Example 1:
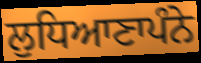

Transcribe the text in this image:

ਲੁਧਿਆਣਾਪੰਨੇ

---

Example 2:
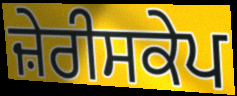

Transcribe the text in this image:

ਜ਼ੇਰੀਸਕੇਪ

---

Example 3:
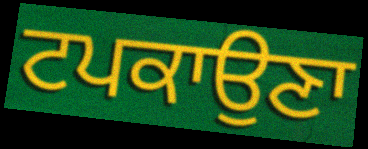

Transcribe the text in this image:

ਟਪਕਾਉਣਾ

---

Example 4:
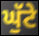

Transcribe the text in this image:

ਘੁੱਟੇ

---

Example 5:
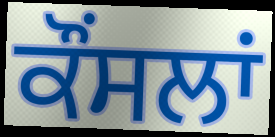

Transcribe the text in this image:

ਕੌਂਸਲਾਂ